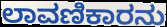
ಲಾವಣಿಕಾರನು